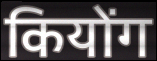
कियोंग